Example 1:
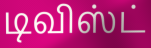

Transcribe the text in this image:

டிவிஸ்ட்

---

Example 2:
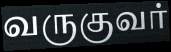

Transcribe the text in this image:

வருகுவர்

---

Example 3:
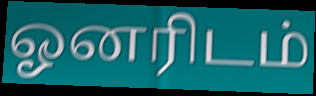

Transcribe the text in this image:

ஓனரிடம்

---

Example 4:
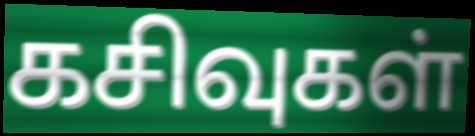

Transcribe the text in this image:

கசிவுகள்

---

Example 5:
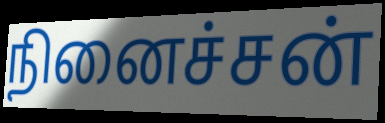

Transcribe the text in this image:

நினைச்சன்